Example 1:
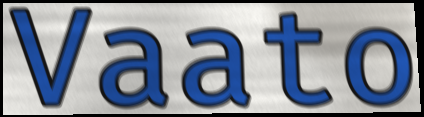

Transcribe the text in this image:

Vaato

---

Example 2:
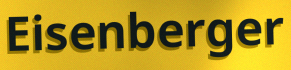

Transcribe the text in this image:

Eisenberger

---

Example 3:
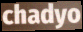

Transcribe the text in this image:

chadyo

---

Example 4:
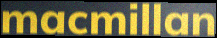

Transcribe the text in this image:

macmillan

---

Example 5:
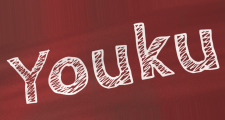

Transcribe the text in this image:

Youku